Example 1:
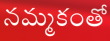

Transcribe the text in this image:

నమ్మకంతో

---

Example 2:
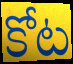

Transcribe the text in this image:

కోట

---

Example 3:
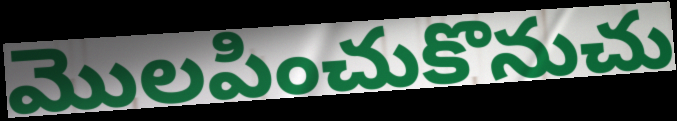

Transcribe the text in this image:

మొలపించుకొనుచు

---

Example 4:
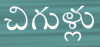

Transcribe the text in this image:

చిగుళ్లు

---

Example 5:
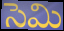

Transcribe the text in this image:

సెమి